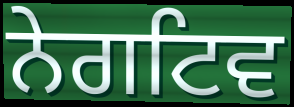
ਨੇਗਟਿਵ